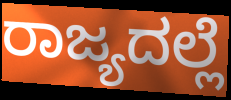
ರಾಜ್ಯದಲ್ಲೆ